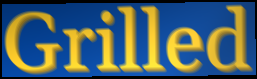
Grilled